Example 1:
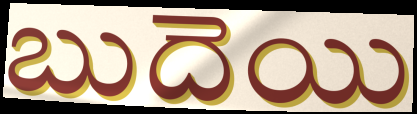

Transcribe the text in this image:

బుదెయి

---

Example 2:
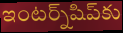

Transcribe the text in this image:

ఇంటర్న్‌షిప్‌కు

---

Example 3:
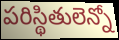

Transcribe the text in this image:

పరిస్థితులెన్నో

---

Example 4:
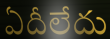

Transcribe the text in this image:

ఏదీలేదు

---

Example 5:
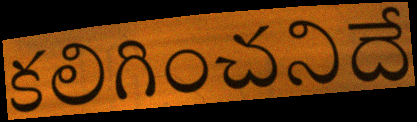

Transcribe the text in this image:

కలిగించనిదే